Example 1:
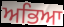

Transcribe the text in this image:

ਅਭਿਆ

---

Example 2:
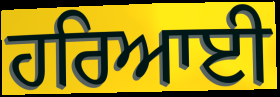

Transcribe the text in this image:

ਹਰਿਆਈ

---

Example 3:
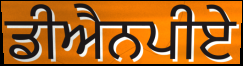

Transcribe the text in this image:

ਡੀਐਨਪੀਏ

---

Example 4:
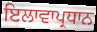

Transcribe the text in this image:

ਇਲਾਵਾਪ੍ਰਧਾਨ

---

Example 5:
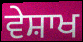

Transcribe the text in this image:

ਵੇਸ਼ਾਖ